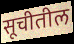
सूचीतील